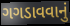
ગગડાવવાનું